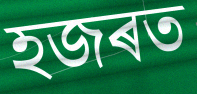
হজৰত